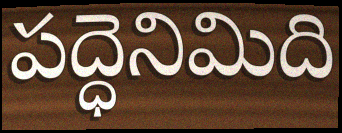
పద్ధెనిమిది